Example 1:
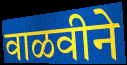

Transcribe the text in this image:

वाळवीने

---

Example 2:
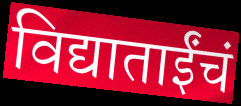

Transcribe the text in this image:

विद्याताईंचं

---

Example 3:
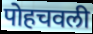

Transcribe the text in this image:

पोहचवली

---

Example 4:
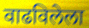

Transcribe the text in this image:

वाढविलेला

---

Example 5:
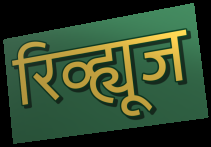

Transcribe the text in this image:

रिव्ह्यूज